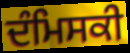
ਦੰਮਿਸਕੀ